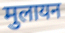
मुलायन